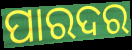
ପାରଦର